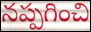
నప్పగించి